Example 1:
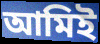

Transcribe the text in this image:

আমিই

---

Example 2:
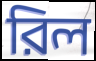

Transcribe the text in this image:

রিল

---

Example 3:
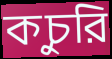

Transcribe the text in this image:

কচুরি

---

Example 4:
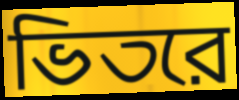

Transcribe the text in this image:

ভিতরে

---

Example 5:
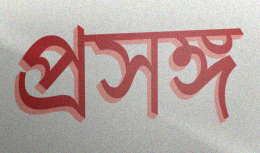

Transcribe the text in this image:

প্রসঙ্গ